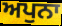
ਅਪੁਨਾ